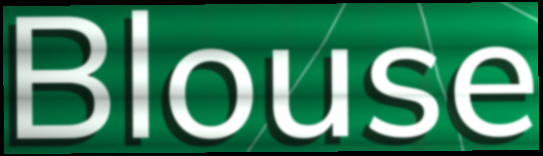
Blouse